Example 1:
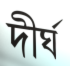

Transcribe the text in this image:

দীর্ঘ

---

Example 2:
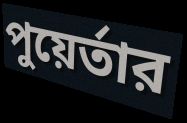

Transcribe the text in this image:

পুয়ের্তার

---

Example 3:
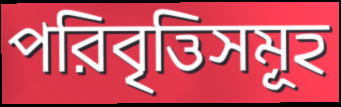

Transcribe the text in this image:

পরিবৃত্তিসমূহ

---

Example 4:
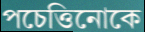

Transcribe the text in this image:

পচেত্তিনোকে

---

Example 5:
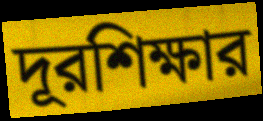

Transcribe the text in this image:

দূরশিক্ষার